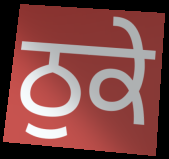
ਠੁਕੇ